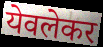
येवलेकर